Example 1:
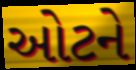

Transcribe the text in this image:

ઓટને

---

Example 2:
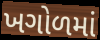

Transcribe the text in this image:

ખગોળમાં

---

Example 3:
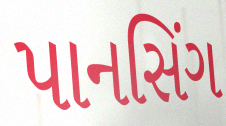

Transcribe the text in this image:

પાનસિંગ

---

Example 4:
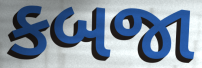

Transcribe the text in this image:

કબજા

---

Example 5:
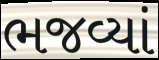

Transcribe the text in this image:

ભજવ્યાં